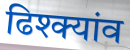
ढिश्क्यांव